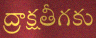
ద్రాక్షతీగకు